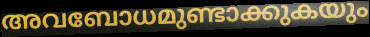
അവബോധമുണ്ടാക്കുകയും